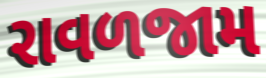
રાવળજામ